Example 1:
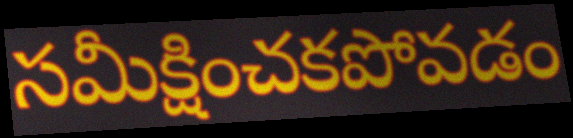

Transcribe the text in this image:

సమీక్షించకపోవడం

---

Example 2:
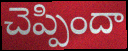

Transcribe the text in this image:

చెప్పిందా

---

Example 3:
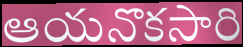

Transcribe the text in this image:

ఆయనొకసారి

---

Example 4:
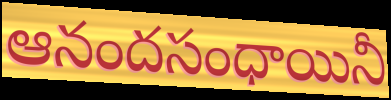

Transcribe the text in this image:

ఆనందసంధాయినీ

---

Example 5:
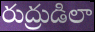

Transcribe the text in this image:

రుద్రుడిలా